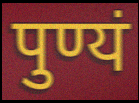
पुण्यं